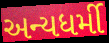
અન્યધર્મી